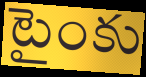
టైంకు